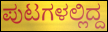
ಪುಟಗಳಲ್ಲಿದ್ದ